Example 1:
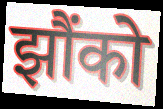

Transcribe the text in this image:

झौंको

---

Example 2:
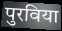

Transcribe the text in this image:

पुरविया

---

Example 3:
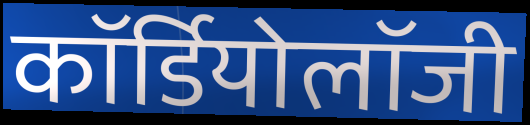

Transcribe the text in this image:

कॉर्डियोलॉजी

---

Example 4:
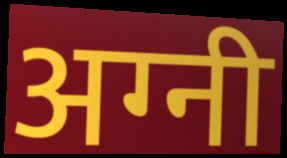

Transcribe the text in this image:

अग्नी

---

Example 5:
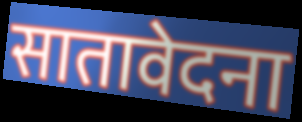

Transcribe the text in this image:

सातावेदना